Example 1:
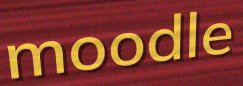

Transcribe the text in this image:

moodle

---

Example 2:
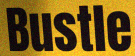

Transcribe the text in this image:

Bustle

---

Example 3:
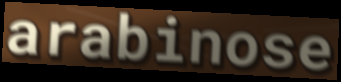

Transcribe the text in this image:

arabinose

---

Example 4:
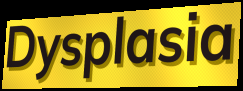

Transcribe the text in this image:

Dysplasia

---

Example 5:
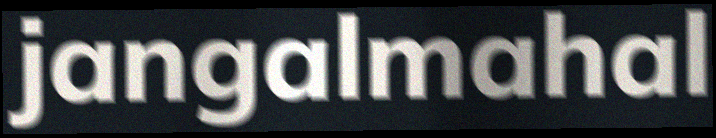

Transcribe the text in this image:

jangalmahal